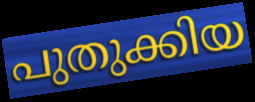
പുതുക്കിയ